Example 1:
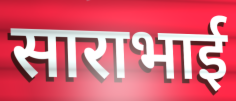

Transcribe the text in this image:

साराभाई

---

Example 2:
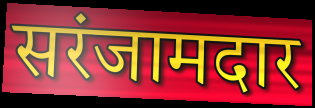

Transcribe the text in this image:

सरंजामदार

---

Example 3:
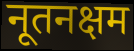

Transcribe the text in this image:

नूतनक्षम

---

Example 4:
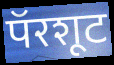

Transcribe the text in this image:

पॅरशूट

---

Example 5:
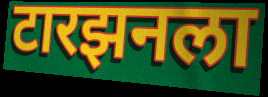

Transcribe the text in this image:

टारझनला